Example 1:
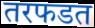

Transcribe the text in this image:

तरफडत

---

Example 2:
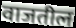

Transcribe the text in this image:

वाजतील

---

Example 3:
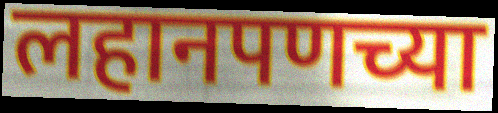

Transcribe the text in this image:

लहानपणच्या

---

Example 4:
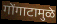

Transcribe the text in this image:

गोंगाटामुळे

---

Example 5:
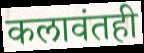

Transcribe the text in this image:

कलावंतही